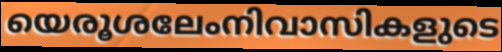
യെരൂശലേംനിവാസികളുടെ